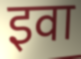
इवा